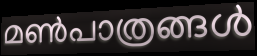
മൺപാത്രങ്ങൾ